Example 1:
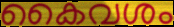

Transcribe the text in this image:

കൈവശം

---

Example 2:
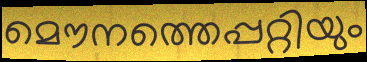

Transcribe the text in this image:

മൌനത്തെപ്പറ്റിയും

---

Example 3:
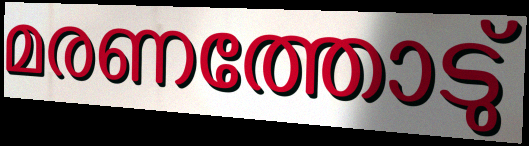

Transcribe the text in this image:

മരണത്തോടു്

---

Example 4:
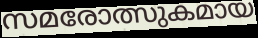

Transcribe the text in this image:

സമരോത്സുകമായ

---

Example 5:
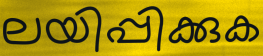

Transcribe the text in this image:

ലയിപ്പിക്കുക